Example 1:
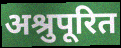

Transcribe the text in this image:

अश्रुपूरित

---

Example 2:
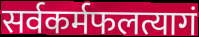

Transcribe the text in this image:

सर्वकर्मफलत्यागं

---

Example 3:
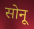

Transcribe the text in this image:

सोनू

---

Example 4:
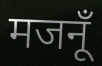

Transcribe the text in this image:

मजनूँ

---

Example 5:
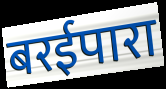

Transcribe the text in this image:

बरईपारा